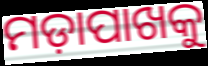
ମଡ଼ାପାଖକୁ